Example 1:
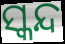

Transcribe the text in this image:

ସ୍କନ୍ଦ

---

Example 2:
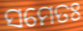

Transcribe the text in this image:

ସମେତଃ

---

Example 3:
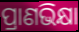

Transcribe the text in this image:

ପ୍ରାଣଭିକ୍ଷା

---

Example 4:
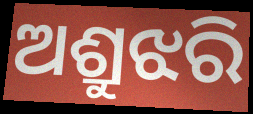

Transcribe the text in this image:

ଅଶ୍ରୁଝରି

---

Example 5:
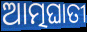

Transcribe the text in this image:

ଆତ୍ମଘାତୀ